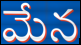
మేన